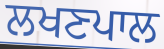
ਲਖਣਪਾਲ